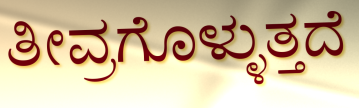
ತೀವ್ರಗೊಳ್ಳುತ್ತದೆ